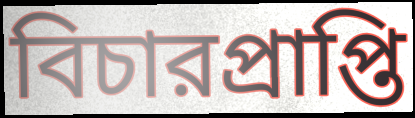
বিচারপ্রাপ্তি